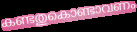
കണ്ടതുകൊണ്ടാവണം